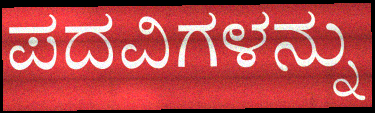
ಪದವಿಗಳನ್ನು